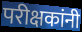
परीक्षकांनी